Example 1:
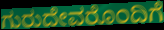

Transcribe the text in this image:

ಗುರುದೇವರೊಂದಿಗೆ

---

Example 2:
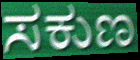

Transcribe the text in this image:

ಸಕುಣ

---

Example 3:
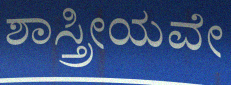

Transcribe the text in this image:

ಶಾಸ್ತ್ರೀಯವೇ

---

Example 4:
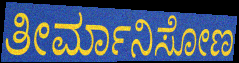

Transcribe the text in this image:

ತೀರ್ಮಾನಿಸೋಣ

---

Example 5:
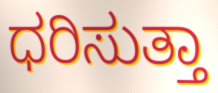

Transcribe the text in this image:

ಧರಿಸುತ್ತಾ